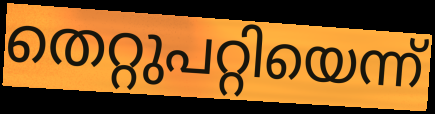
തെറ്റുപറ്റിയെന്ന്